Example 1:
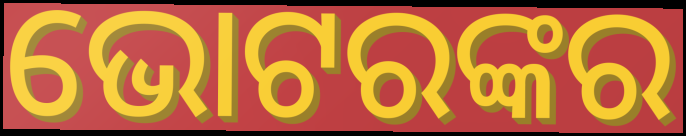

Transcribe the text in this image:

ଭୋଟରଙ୍କର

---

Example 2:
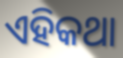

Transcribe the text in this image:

ଏହିକଥା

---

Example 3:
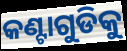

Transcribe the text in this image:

କଣ୍ଟାଗୁଡିକୁ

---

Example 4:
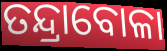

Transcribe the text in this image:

ତନ୍ଦ୍ରାବୋଳା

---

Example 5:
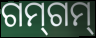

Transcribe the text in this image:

ଗମ୍‌ଗମ୍